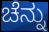
ಚೆನ್ನು